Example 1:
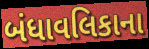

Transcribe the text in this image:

બંધાવલિકાના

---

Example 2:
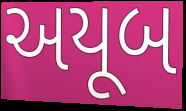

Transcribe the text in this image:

અયૂબ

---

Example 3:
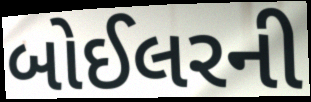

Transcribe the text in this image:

બોઈલરની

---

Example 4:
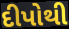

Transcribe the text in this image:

દીપોથી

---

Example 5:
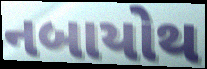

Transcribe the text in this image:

નબાયોથ